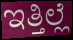
ಇತ್ತಿಲ್ಲೆ